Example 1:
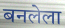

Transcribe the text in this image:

बनलेला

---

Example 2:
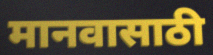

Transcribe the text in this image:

मानवासाठी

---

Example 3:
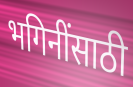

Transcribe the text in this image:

भगिनींसाठी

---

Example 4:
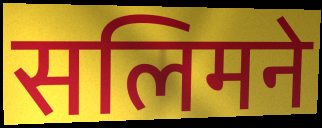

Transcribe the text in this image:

सलिमने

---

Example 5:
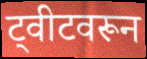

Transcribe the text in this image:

ट्वीटवरून